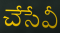
చేసేవీ